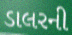
ડાલરની